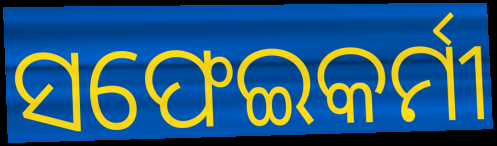
ସଫେଇକର୍ମୀ